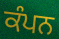
ਕੰਪਨ